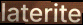
laterite